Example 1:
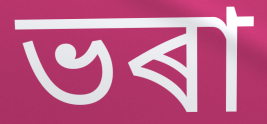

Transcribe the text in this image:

ভৰা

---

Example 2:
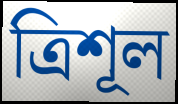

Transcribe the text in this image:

ত্ৰিশূল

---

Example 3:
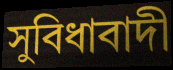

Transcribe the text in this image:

সুবিধাবাদী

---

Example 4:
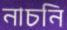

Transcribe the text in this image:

নাচনি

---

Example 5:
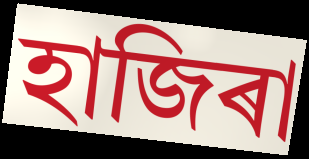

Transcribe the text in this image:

হাজিৰা